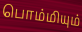
பொம்மியும்